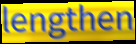
lengthen